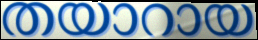
തയാറായ